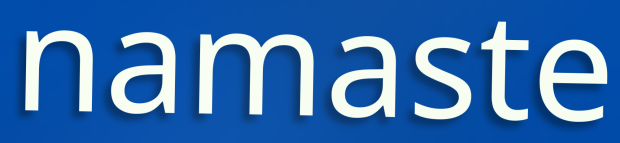
namaste